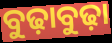
ବୁଢ଼ାବୁଢ଼ା